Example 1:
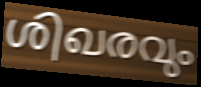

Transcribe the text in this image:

ശിഖരവും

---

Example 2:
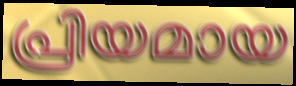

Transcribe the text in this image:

പ്രിയമായ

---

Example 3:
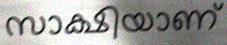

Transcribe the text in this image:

സാക്ഷിയാണ്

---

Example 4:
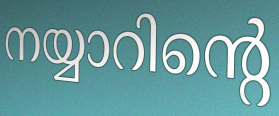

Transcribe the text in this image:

നയ്യാറിന്റെ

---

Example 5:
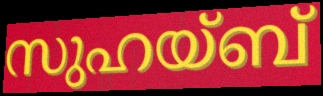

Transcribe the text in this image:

സുഹയ്ബ്